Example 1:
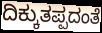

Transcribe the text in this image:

ದಿಕ್ಕುತಪ್ಪದಂತೆ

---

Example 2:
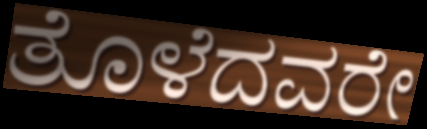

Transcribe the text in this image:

ತೊಳೆದವರೇ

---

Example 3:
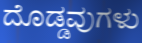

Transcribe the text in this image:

ದೊಡ್ಡವುಗಳು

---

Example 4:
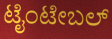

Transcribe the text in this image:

ಟೈಂಟೇಬಲ್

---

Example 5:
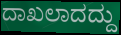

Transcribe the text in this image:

ದಾಖಲಾದದ್ದು